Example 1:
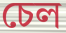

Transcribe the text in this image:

চেল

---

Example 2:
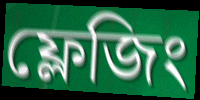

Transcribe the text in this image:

ফ্লেজিং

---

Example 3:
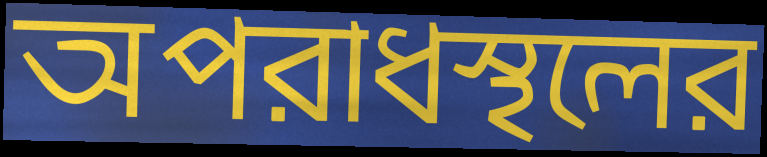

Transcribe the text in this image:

অপরাধস্থলের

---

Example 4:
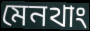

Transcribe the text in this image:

মেনথাং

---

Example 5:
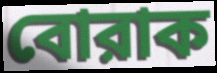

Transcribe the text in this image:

বোরাক